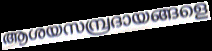
ആശയസമ്പ്രദായങ്ങളെ